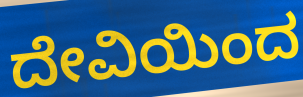
ದೇವಿಯಿಂದ